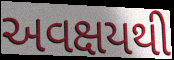
અવક્ષયથી